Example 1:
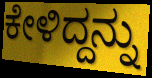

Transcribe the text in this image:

ಕೇಳಿದ್ದನ್ನು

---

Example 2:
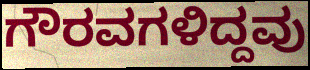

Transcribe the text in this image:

ಗೌರವಗಳಿದ್ದವು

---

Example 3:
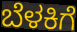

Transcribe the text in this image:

ಬೆಳಕಿಗೆ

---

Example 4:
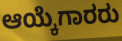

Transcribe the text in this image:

ಆಯ್ಕೆಗಾರರು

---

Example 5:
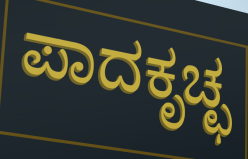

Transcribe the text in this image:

ಪಾದಕೃಚ್ಛ